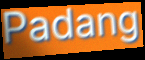
Padang